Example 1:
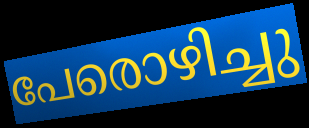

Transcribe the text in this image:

പേരൊഴിച്ചു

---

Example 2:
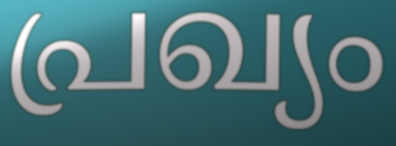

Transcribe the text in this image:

പ്രഖ്യം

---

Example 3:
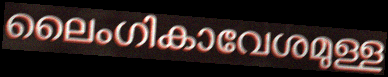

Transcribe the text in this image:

ലൈംഗികാവേശമുള്ള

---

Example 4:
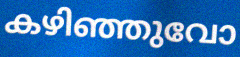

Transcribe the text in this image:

കഴിഞ്ഞുവോ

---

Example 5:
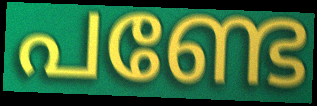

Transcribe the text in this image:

പണ്ടേ